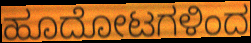
ಹೂದೋಟಗಳಿಂದ